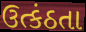
ઉત્કંઠતા